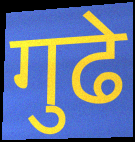
गुढे